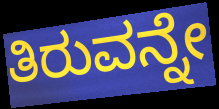
ತಿರುವನ್ನೇ